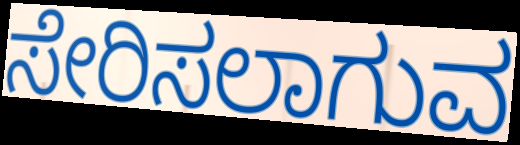
ಸೇರಿಸಲಾಗುವ